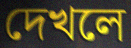
দেখলে